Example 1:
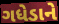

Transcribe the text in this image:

ગધેડાને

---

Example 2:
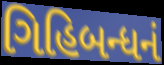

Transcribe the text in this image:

ગિહિબન્ધનં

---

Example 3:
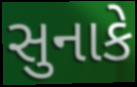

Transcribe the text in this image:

સુનાકે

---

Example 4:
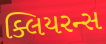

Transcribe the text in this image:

ક્લિયરન્સ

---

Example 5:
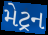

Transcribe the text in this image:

મેટ્રન